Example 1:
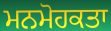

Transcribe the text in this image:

ਮਨਮੋਹਕਤਾ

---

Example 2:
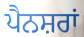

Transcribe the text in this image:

ਪੈਨਸ਼ਰਾਂ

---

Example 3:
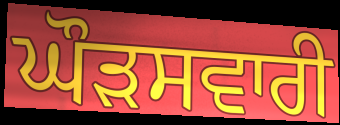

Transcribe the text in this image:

ਘੌੜਸਵਾਰੀ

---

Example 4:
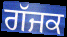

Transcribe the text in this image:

ਗੱਜਕ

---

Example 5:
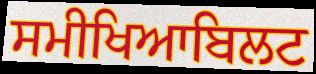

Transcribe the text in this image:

ਸਮੀਖਿਆਬਿਲਟ